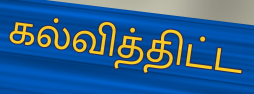
கல்வித்திட்ட